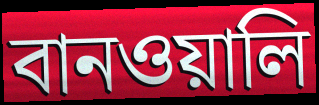
বানওয়ালি